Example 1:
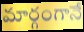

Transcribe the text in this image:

మార్గంగానే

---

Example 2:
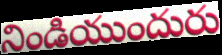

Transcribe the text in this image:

నిండియుందురు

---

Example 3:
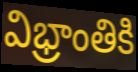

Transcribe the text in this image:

విభ్రాంతికి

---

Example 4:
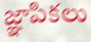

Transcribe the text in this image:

జ్ఞాపికలు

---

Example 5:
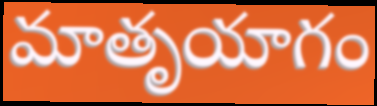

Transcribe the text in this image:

మాతృయాగం